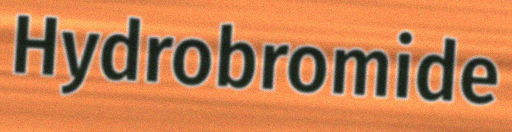
Hydrobromide